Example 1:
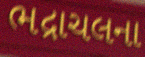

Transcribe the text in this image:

ભદ્રાચલના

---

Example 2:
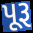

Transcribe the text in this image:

પૂરૂ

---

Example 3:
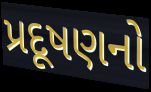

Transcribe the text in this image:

પ્રદૂષણનો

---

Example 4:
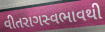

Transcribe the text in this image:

વીતરાગસ્વભાવથી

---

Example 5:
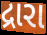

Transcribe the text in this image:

દ્રારા